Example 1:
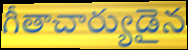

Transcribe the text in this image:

గీతాచార్యుడైన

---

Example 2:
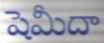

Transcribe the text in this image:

షెమీదా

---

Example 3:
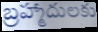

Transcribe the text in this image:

బ్రహ్మాదులకు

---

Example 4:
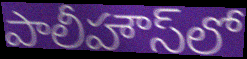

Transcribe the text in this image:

పాలీహౌస్‌లో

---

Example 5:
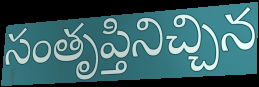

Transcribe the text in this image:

సంతృప్తినిచ్చిన